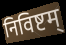
निविष्टम्